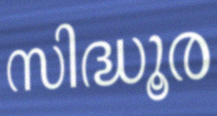
സിദ്ധൂര